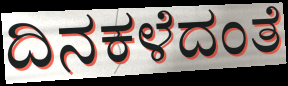
ದಿನಕಳೆದಂತೆ